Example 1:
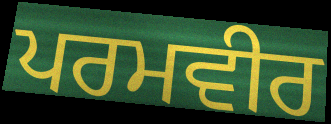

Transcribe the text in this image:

ਪਰਮਵੀਰ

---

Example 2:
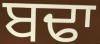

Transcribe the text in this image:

ਬਢਾ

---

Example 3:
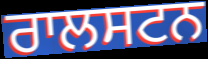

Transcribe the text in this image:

ਰਾਲਸਟਨ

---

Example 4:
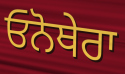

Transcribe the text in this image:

ਓਨੋਥੇਰਾ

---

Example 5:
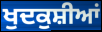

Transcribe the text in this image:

ਖੁਦਕੁਸ਼ੀਆਂ